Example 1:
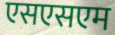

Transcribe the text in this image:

एसएसएम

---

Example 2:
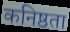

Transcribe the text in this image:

कनिष्ठता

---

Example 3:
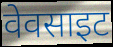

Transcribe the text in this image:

वेवसाइट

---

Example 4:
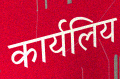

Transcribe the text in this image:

कार्यलिय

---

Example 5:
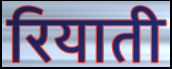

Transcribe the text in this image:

रियाती